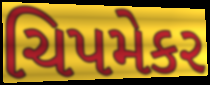
ચિપમેકર